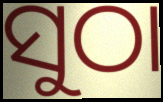
ସୁଠା